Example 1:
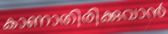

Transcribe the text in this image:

കാണാതിരിക്കുവാൻ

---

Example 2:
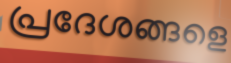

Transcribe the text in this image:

പ്രദേശങ്ങളെ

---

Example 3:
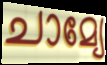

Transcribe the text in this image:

ചാമ്യേ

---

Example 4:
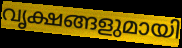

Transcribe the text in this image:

വൃക്ഷങ്ങളുമായി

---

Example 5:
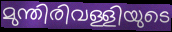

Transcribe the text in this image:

മുന്തിരിവള്ളിയുടെ